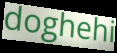
doghehi